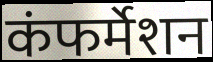
कंफर्मेशन